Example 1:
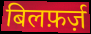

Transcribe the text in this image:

बिलफ़र्ज़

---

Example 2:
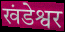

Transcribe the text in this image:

खंडेश्वर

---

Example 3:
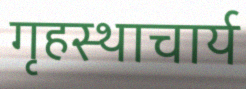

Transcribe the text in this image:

गृहस्थाचार्य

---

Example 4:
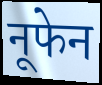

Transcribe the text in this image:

नूफेन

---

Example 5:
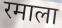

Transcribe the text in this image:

रमाला